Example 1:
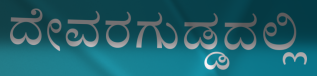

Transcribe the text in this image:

ದೇವರಗುಡ್ಡದಲ್ಲಿ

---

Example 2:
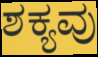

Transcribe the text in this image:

ಶಕ್ಯವು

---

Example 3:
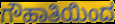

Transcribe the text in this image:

ಗೌಹಾತಿಯಿಂದ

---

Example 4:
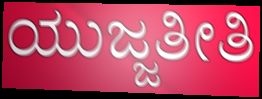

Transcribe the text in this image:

ಯುಜ್ಜತೀತಿ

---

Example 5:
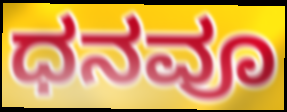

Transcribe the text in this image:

ಧನವೂ